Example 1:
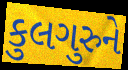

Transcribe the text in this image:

કુલગુરુને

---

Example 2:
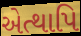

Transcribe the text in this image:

એત્થાપિ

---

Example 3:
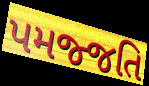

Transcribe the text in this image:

પમજ્જતિ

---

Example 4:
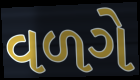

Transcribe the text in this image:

વળગે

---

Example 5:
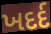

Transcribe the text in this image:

ખદર્દ